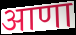
आणा